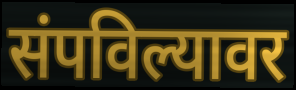
संपविल्यावर